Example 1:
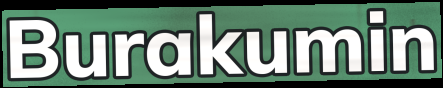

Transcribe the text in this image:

Burakumin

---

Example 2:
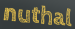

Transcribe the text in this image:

nuthal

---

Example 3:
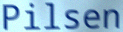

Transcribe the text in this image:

Pilsen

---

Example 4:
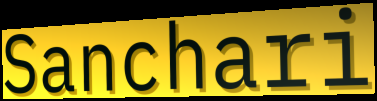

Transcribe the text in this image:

Sanchari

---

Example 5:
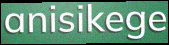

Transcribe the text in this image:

anisikege